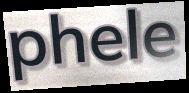
phele